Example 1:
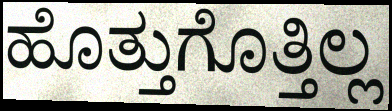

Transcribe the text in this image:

ಹೊತ್ತುಗೊತ್ತಿಲ್ಲ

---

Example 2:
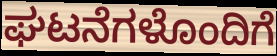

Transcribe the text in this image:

ಘಟನೆಗಳೊಂದಿಗೆ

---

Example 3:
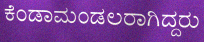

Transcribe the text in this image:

ಕೆಂಡಾಮಂಡಲರಾಗಿದ್ದರು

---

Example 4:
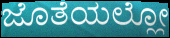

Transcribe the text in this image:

ಜೊತೆಯಲ್ಲೋ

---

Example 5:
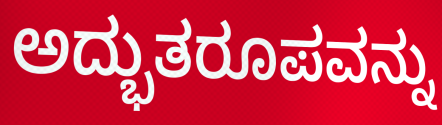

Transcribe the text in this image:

ಅದ್ಭುತರೂಪವನ್ನು